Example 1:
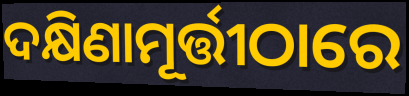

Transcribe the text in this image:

ଦକ୍ଷିଣାମୂର୍ତ୍ତୀଠାରେ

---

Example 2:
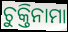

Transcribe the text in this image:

ଚୁକ୍ତିନାମା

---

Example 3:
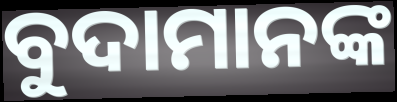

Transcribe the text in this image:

ବୁଦାମାନଙ୍କ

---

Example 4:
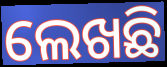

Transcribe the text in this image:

ଲେଖଛି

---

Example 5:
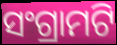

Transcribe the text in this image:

ସଂଗ୍ରାମଟି